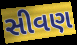
સીવણ